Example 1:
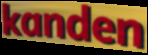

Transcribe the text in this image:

kanden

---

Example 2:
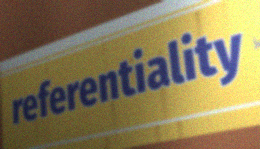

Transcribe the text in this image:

referentiality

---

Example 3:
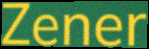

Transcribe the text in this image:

Zener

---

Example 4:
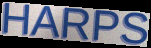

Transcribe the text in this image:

HARPS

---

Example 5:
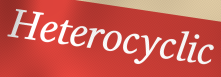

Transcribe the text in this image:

Heterocyclic